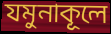
যমুনাকূলে